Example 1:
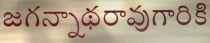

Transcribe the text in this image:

జగన్నాథరావుగారికి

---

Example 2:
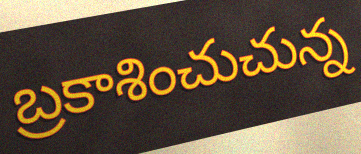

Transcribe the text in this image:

బ్రకాశించుచున్న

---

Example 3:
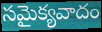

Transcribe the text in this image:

సమైక్యవాదం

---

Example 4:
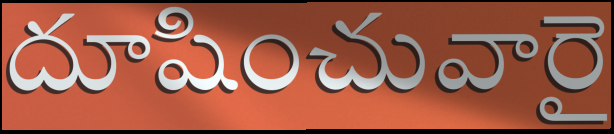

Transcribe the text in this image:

దూషించువారై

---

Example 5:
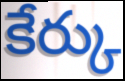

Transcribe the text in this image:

కేర్కు